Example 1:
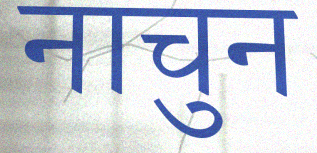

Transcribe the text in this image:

नाचुन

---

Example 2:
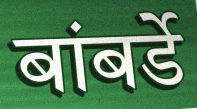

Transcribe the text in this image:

बांबर्डे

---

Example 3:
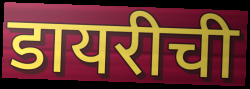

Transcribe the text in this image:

डायरीची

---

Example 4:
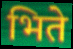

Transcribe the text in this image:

भिते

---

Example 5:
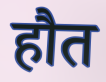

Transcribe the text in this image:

हौत